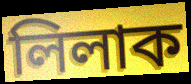
লিলাক